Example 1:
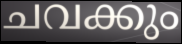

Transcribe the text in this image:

ചവക്കും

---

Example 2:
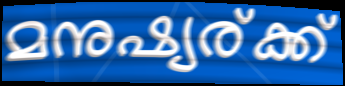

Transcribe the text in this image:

മനുഷ്യര്ക്ക്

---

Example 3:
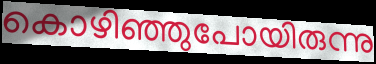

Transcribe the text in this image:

കൊഴിഞ്ഞുപോയിരുന്നു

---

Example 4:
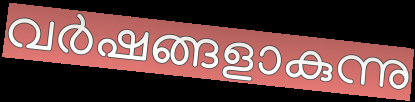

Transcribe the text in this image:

വർഷങ്ങളാകുന്നു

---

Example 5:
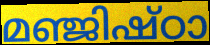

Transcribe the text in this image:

മഞ്ജിഷ്ഠാ